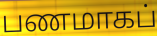
பணமாகப்